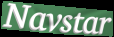
Navstar